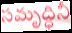
సమృద్ధినీ